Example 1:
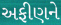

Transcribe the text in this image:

અફીણને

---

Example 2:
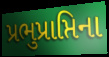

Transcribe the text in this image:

પ્રભુપ્રાપ્તિના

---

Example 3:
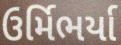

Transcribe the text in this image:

ઉર્મિભર્યા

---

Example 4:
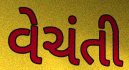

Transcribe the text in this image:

વેચંતી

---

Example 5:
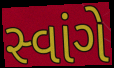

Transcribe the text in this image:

સ્વાંગે